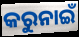
କରୁନାଇଁ